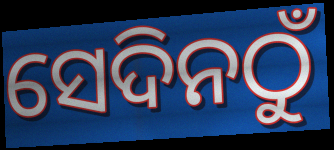
ସେଦିନଠୁଁ